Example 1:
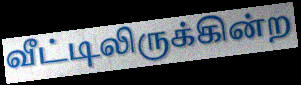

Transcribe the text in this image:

வீட்டிலிருக்கின்ற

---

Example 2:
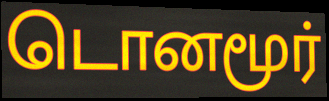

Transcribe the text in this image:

டொனமூர்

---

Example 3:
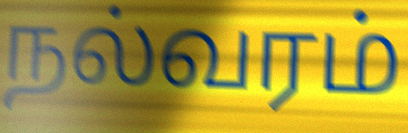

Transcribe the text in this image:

நல்வரம்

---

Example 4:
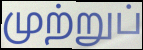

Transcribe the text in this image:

முற்றுப்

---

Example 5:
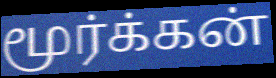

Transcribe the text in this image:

மூர்க்கன்